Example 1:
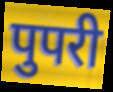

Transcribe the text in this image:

पुपरी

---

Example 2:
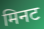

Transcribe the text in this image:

मिनट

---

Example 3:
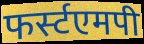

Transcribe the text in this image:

फर्स्टएमपी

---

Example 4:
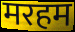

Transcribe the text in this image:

मरहम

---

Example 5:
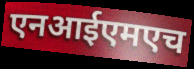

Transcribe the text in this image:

एनआईएमएच